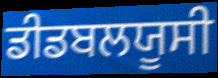
ਡੀਡਬਲਯੂਸੀ